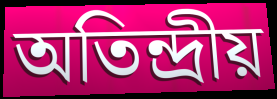
অতিন্দ্রীয়